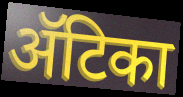
ॲटिका